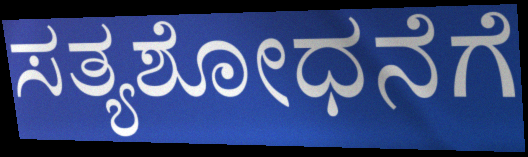
ಸತ್ಯಶೋಧನೆಗೆ